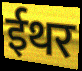
ईथर